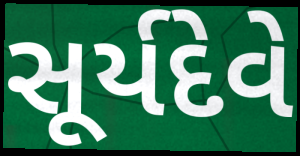
સૂર્યદેવે